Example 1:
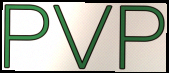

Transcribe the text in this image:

PVP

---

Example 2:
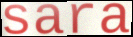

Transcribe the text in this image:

sara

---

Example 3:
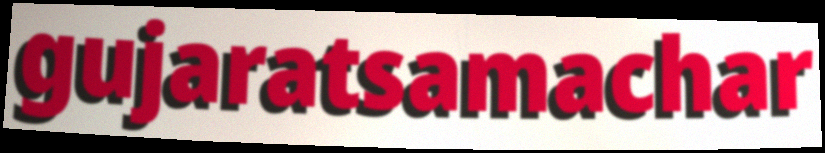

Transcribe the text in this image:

gujaratsamachar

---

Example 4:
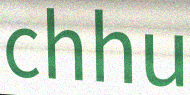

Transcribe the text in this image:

chhu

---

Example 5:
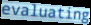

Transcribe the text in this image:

evaluating